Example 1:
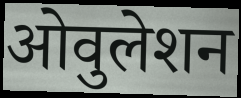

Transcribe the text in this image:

ओवुलेशन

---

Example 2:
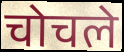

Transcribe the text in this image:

चोचले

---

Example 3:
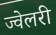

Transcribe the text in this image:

ज्वेलरी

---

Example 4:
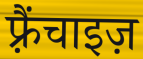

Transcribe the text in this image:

फ़्रैंचाइज़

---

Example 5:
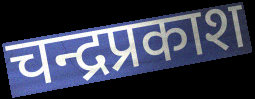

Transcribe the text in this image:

चन्द्रप्रकाश